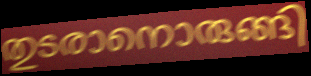
തുടരാനൊരുങ്ങി